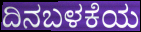
ದಿನಬಳಕೆಯ